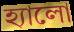
হ্যালো